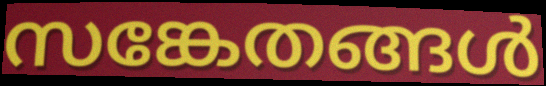
സങ്കേതങ്ങൾ